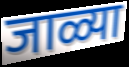
जाळ्या